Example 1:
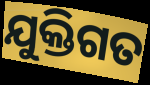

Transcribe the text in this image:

ଯୁକ୍ତିଗତ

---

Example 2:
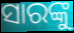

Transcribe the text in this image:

ସାରଙ୍କୁ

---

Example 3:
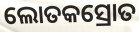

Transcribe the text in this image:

ଲୋତକସ୍ରୋତ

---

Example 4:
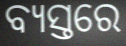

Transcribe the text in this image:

ବ୍ୟସ୍ତରେ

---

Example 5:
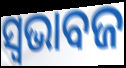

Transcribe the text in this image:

ସ୍ୱଭାବଜ